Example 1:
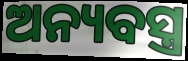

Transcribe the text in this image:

ଅନ୍ୟବସ୍ତ୍ର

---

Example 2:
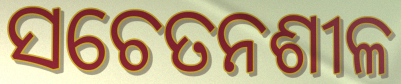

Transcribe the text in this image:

ସଚେତନଶୀଳ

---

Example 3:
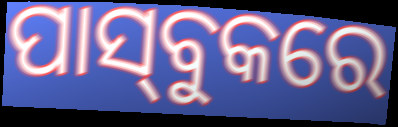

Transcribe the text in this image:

ପାସ୍‌ବୁକରେ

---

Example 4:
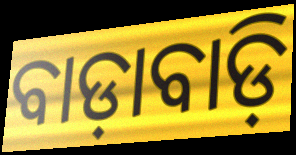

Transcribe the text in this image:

ବାଡ଼ାବାଡ଼ି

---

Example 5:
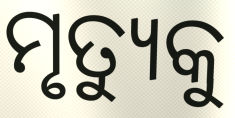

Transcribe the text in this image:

ମୃତ୍ୟୁକୁ